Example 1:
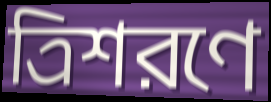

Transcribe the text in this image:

ত্রিশরণে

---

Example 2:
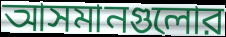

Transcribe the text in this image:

আসমানগুলোর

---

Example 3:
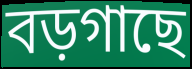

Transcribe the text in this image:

বড়গাছে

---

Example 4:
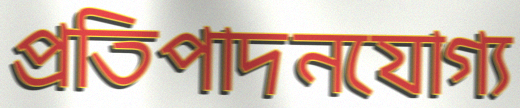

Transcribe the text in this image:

প্রতিপাদনযোগ্য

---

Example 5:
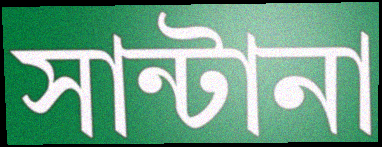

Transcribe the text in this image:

সান্টানা